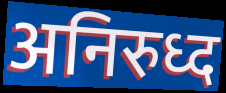
अनिरुध्द